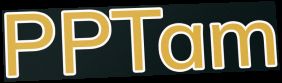
PPTam